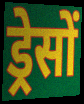
ड्रेसों